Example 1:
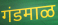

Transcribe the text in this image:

गंडमाळ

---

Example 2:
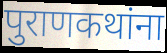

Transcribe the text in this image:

पुराणकथांना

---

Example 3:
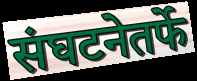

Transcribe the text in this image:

संघटनेतर्फे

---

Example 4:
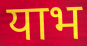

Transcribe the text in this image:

याभ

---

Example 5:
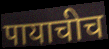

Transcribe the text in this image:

पायाचीच